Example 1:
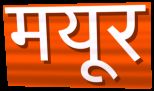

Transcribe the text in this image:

मयूर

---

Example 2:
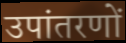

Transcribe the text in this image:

उपांतरणों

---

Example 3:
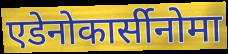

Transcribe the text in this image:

एडेनोकार्सीनोमा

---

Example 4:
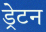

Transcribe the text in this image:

ड्रेटन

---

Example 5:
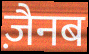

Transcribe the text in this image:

ज़ैनब